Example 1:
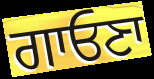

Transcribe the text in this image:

ਗਾਓਣਾ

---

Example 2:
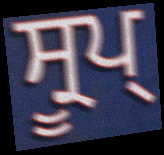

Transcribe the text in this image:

ਸ੍ਰੂਪ੍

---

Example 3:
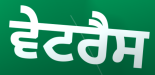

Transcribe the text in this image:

ਵੇਟਰੈਸ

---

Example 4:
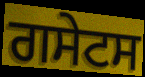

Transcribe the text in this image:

ਗਸੇਟਸ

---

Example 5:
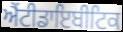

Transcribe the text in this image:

ਐਂਟੀਡਾਇਬੀਟਿਕ